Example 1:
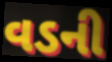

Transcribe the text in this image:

વડની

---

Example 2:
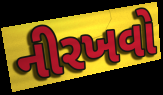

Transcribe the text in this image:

નીરખવો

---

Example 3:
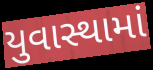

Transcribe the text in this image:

યુવાસ્થામાં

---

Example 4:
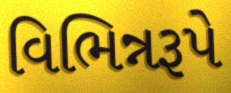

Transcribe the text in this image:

વિભિન્નરૂપે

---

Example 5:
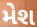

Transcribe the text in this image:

મેશ